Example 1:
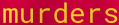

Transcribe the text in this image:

murders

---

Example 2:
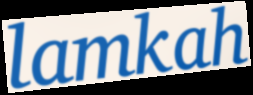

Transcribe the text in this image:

lamkah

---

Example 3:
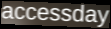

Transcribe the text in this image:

accessday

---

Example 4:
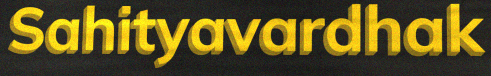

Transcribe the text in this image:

Sahityavardhak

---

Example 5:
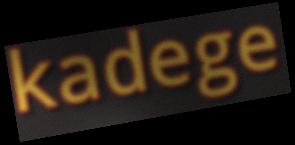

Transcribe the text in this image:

kadege